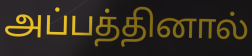
அப்பத்தினால்